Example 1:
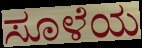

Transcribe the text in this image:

ಸೂಳೆಯ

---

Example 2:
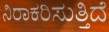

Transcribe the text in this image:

ನಿರಾಕರಿಸುತ್ತಿದೆ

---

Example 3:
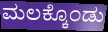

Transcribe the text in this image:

ಮಲಕ್ಕೊಂಡು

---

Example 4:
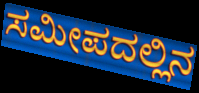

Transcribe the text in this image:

ಸಮೀಪದಲ್ಲಿನ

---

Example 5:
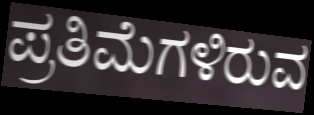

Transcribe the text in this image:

ಪ್ರತಿಮೆಗಳಿರುವ